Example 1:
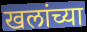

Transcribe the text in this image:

खलांच्या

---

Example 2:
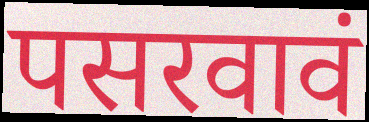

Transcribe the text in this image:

पसरवावं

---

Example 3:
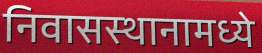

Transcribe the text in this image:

निवासस्थानामध्ये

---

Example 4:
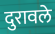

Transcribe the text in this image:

दुरावले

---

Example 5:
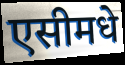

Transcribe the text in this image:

एसीमधे